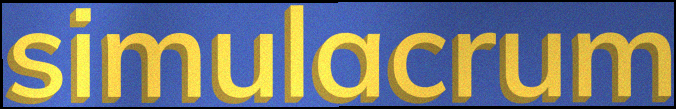
simulacrum